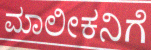
ಮಾಲೀಕನಿಗೆ